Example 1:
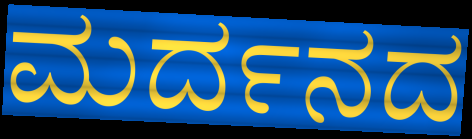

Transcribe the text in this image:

ಮರ್ದನದ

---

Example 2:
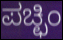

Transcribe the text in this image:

ಪಚ್ಛಿಂ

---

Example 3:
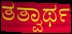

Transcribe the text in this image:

ತತ್ವಾರ್ಥ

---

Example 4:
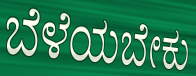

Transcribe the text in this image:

ಬೆಳೆಯಬೇಕು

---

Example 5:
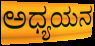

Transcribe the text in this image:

ಅಧ್ಯಯನ